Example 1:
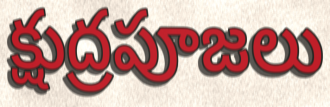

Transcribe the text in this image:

క్షుద్రపూజలు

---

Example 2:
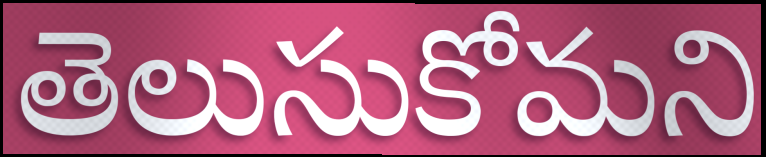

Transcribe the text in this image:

తెలుసుకోమని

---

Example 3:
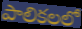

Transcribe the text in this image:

పాలికలలో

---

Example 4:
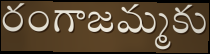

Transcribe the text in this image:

రంగాజమ్మకు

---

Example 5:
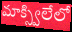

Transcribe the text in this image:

మాక్స్విలేలో